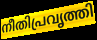
നീതിപ്രവൃത്തി